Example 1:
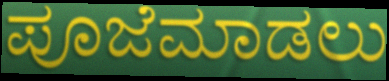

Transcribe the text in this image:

ಪೂಜೆಮಾಡಲು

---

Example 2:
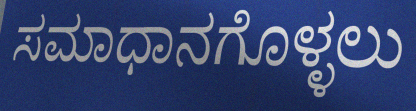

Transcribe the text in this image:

ಸಮಾಧಾನಗೊಳ್ಳಲು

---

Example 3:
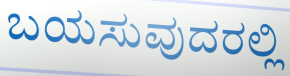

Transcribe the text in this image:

ಬಯಸುವುದರಲ್ಲಿ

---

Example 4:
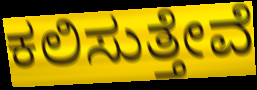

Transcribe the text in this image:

ಕಲಿಸುತ್ತೇವೆ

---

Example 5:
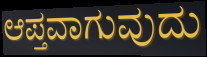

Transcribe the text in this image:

ಆಪ್ತವಾಗುವುದು